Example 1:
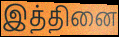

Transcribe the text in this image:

இத்தினை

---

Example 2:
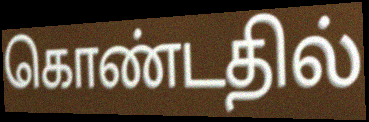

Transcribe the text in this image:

கொண்டதில்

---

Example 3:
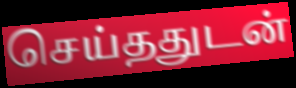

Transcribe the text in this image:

செய்ததுடன்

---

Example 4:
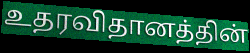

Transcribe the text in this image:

உதரவிதானத்தின்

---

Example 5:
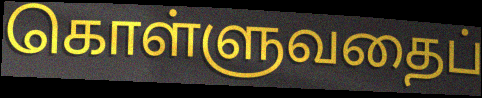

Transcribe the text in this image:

கொள்ளுவதைப்